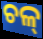
ଚଳ୍